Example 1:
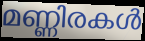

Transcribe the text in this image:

മണ്ണിരകൾ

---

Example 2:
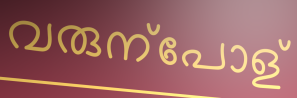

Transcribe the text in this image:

വരുന്പോള്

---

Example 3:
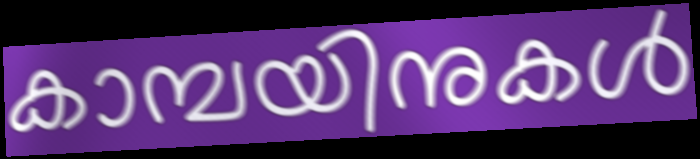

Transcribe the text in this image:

കാമ്പയിനുകൾ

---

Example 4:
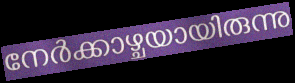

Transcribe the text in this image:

നേർക്കാഴ്ചയായിരുന്നു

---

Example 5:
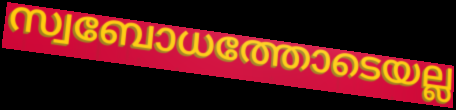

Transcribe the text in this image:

സ്വബോധത്തോടെയല്ല